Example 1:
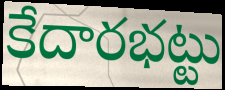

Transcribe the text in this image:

కేదారభట్టు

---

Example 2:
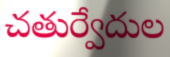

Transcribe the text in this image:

చతుర్వేదుల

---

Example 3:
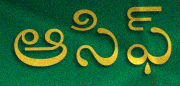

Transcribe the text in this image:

ఆసిఫ్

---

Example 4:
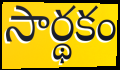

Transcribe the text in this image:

సార్థకం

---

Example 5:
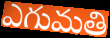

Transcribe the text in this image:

ఎగుమతి